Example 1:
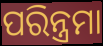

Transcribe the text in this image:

ପରିନ୍ତ୍ରମା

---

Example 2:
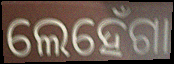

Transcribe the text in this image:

ଲେହେଁଗା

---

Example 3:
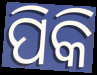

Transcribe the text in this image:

ପିକି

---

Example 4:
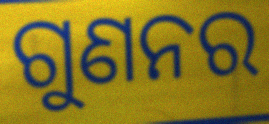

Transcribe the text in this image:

ଗୁଣନର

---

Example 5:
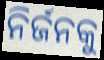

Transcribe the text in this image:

ନିର୍ଜନକୁ